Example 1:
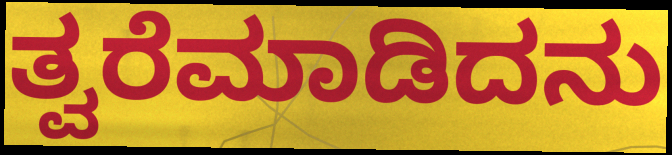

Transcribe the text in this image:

ತ್ವರೆಮಾಡಿದನು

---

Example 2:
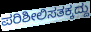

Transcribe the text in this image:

ಪರಿಶೀಲಿಸತಕ್ಕದ್ದು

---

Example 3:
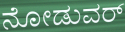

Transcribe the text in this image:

ನೋಡುವರ್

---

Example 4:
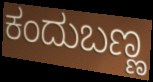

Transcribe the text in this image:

ಕಂದುಬಣ್ಣ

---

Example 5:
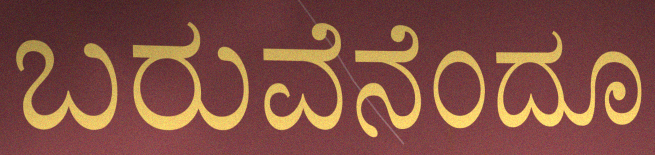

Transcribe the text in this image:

ಬರುವೆನೆಂದೂ